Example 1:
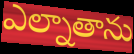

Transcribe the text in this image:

ఎల్నాతాను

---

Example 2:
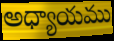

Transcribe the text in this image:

అధ్యాయము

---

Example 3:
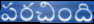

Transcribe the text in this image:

పరచింది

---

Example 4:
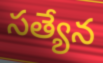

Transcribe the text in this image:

సత్యేన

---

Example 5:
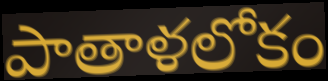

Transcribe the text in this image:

పాతాళలోకం